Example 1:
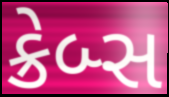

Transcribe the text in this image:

ક્રેબ્સ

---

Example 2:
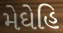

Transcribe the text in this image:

મેઘેહિ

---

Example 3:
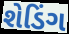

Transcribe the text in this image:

શેડિંગ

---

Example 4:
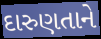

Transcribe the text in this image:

દારુણતાને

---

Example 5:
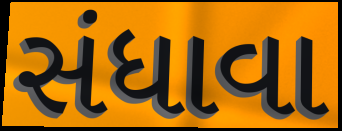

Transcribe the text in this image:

સંધાવા